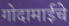
गोदामाईचे